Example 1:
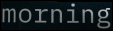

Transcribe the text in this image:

morning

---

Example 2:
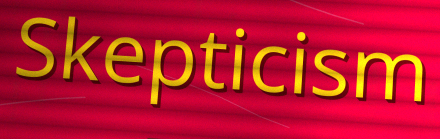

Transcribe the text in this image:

Skepticism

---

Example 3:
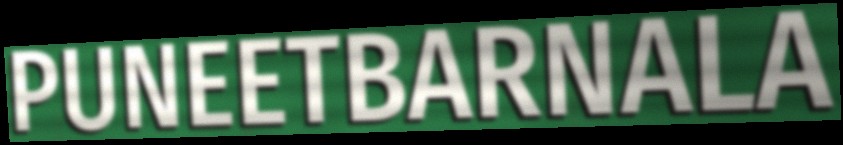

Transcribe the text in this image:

PUNEETBARNALA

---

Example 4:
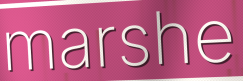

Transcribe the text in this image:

marshe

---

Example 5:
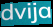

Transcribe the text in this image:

dvija